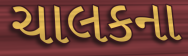
ચાલકના